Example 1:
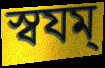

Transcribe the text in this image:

স্বযম্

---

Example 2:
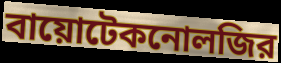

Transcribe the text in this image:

বায়োটেকনোলজির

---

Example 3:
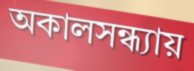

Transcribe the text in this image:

অকালসন্ধ্যায়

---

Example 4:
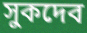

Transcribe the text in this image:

সুকদেব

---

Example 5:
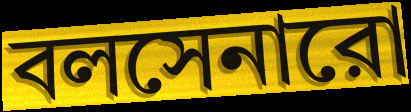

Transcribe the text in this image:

বলসেনারো